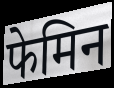
फेमिन